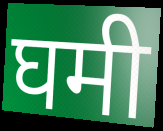
घमी